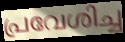
പ്രവേശിച്ച